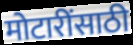
मोटारींसाठी